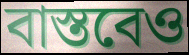
বাস্তবেও